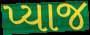
પ્યાજ